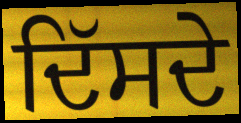
ਦਿੱਸਦੇ